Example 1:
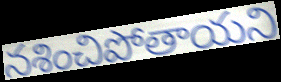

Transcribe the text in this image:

నశించిపోతాయని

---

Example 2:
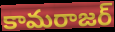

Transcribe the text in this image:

కామరాజర్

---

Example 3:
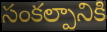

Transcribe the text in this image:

సంకల్పానికి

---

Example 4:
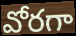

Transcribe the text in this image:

వోరగా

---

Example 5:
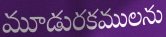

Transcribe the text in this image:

మూడురకములను